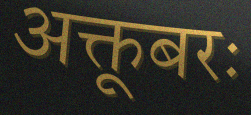
अक्तूबरः